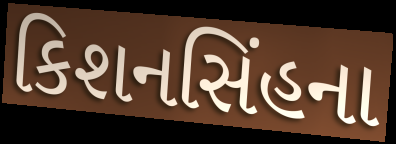
કિશનસિંહના